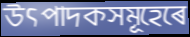
উৎপাদকসমূহেৰে